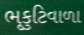
ભૃકુટિવાળા